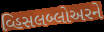
વ્હિસલબ્લોઅરને